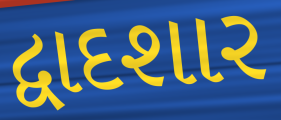
દ્વાદશાર